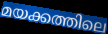
മയക്കത്തിലെ